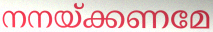
നനയ്ക്കണമേ